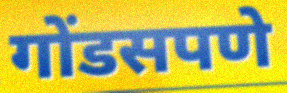
गोंडसपणे